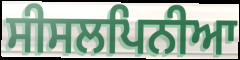
ਸੀਸਲਪਿਨੀਆ